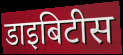
डाइबिटीस